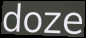
doze